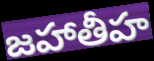
జహాతీహ